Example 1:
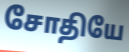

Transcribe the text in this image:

சோதியே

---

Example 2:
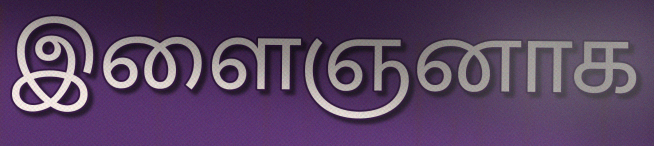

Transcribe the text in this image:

இளைஞனாக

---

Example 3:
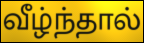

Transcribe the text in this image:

வீழ்ந்தால்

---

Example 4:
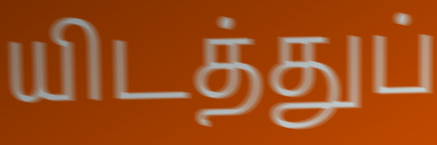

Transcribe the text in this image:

யிடத்துப்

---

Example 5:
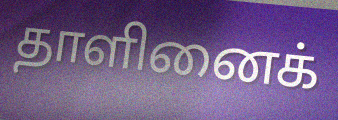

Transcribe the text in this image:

தாளினைக்